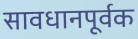
सावधानपूर्वक